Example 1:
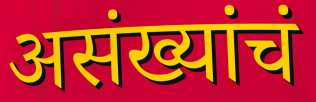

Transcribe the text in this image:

असंख्यांचं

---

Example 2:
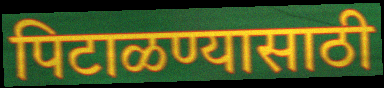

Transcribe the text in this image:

पिटाळण्यासाठी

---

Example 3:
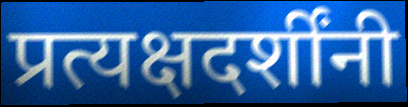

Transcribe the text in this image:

प्रत्यक्षदर्शींनी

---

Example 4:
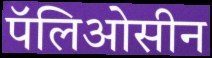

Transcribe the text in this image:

पॅलिओसीन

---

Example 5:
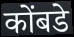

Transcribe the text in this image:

कोंबडे